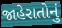
જાહેરાતોનું